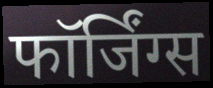
फॉर्जिंग्स